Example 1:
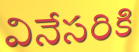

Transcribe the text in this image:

వినేసరికి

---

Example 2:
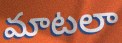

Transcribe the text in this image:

మాటలా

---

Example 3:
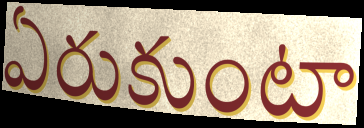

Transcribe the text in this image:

ఏరుకుంటా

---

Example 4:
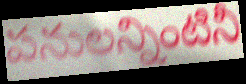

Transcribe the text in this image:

పనులన్నింటినీ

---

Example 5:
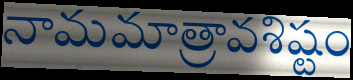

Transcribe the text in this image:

నామమాత్రావశిష్టం